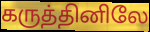
கருத்தினிலே